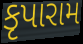
કૃપારામ